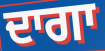
ਦਾਗਾ